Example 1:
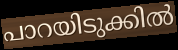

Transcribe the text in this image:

പാറയിടുക്കിൽ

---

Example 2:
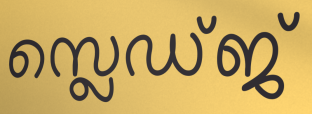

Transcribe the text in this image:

സ്ലെഡ്ജ്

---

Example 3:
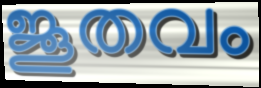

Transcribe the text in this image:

ജൂതവം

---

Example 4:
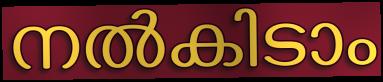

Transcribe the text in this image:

നൽകിടാം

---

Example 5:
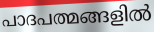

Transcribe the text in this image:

പാദപത്മങ്ങളിൽ